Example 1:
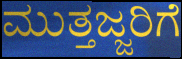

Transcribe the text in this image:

ಮುತ್ತಜ್ಜರಿಗೆ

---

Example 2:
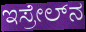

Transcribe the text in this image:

ಇಸ್ರೇಲ್‍ನ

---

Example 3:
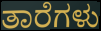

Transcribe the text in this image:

ತಾರೆಗಳು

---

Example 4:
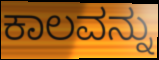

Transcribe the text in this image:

ಕಾಲವನ್ನು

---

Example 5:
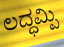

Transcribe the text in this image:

ಲದ್ಧಮ್ಪಿ